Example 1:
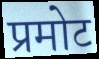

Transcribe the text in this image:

प्रमोट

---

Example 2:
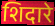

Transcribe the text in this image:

शिदारे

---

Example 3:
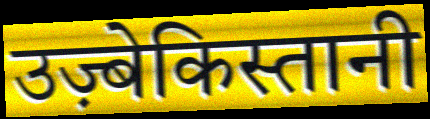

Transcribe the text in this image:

उज़्बेकिस्तानी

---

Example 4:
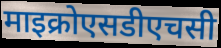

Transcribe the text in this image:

माइक्रोएसडीएचसी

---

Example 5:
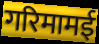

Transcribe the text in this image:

गरिमामई